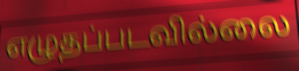
எழுதப்படவில்லை